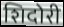
शिदोरी